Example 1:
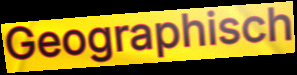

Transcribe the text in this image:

Geographisch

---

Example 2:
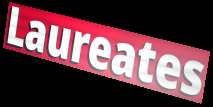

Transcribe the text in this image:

Laureates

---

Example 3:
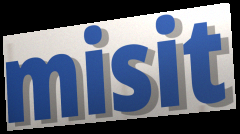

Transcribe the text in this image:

misit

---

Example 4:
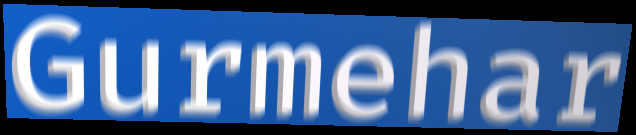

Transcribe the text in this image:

Gurmehar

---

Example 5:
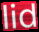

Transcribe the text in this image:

lid